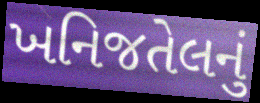
ખનિજતેલનું